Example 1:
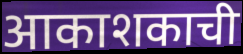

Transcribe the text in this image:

आकाशकाची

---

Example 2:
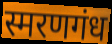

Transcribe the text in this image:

स्मरणगंध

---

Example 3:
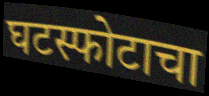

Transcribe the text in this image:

घटस्फोटाचा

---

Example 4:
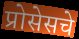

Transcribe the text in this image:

प्रोसेसचे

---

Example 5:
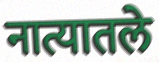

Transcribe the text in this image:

नात्यातले